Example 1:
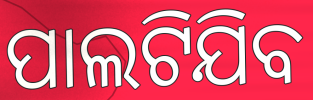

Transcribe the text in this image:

ପାଲଟିଯିବ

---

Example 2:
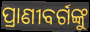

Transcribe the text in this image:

ପ୍ରାଣୀବର୍ଗଙ୍କୁ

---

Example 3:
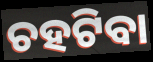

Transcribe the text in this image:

ଚହଟିବା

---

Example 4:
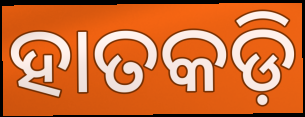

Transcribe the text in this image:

ହାତକଡ଼ି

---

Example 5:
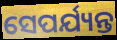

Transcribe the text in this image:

ସେପର୍ଯ୍ୟନ୍ତ